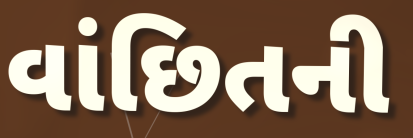
વાંછિતની